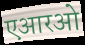
एआरओ